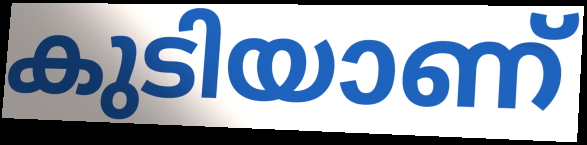
കുടിയാണ്